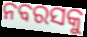
ନବରସକୁ